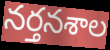
నర్తనశాల